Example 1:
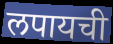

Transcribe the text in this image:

लपायची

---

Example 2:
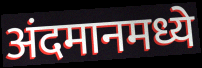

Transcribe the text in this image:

अंदमानमध्ये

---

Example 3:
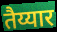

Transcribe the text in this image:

तैय्यार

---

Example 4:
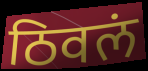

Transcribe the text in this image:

ठिवलं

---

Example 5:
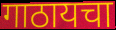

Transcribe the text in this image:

गाठायचा